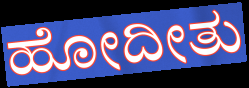
ಹೋದೀತು